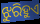
ଝୁରିହୁଏ